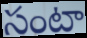
సంటా